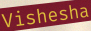
Vishesha